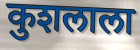
कुशलाला